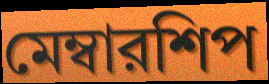
মেম্বারশিপ